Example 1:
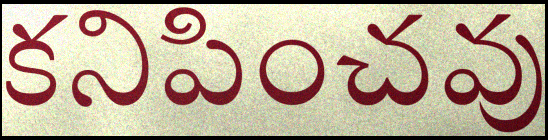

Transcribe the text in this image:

కనిపించవు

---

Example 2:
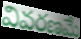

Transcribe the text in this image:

వివరణమే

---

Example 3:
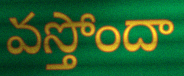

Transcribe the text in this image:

వస్తోందా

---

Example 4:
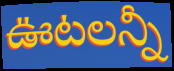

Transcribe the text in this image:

ఊటలన్నీ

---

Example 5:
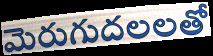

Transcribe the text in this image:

మెరుగుదలలతో